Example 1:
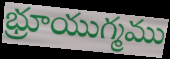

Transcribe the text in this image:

భ్రూయుగ్మము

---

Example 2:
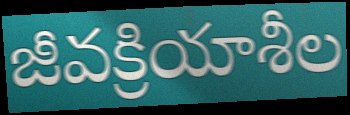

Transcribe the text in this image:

జీవక్రియాశీల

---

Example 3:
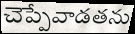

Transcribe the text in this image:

చెప్పేవాడతను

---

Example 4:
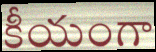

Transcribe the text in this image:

కీయంగా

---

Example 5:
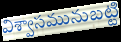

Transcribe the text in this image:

విశ్వాసమునుబట్టి